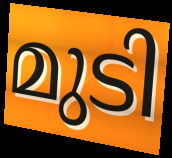
മുടി